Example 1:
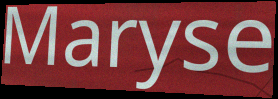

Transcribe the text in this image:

Maryse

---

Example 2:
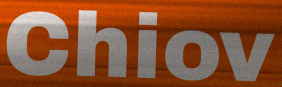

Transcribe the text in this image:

Chiov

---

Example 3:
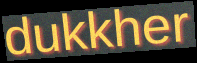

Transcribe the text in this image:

dukkher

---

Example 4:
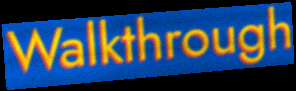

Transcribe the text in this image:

Walkthrough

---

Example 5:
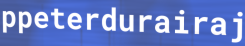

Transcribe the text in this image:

ppeterdurairaj